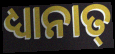
ଧ୍ୟାନାତ୍